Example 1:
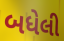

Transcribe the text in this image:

બધેલી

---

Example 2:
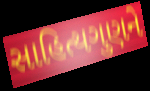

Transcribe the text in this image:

સાહિત્યગુણને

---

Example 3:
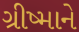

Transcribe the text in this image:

ગ્રીષ્માને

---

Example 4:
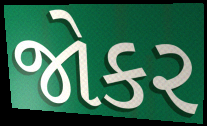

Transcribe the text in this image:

જોકર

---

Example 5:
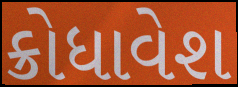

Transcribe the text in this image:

ક્રોધાવેશ